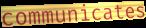
communicates